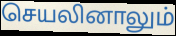
செயலினாலும்